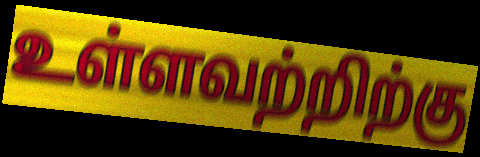
உள்ளவற்றிற்கு